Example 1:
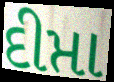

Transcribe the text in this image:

દીપ્તા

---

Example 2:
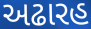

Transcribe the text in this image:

અઢારહ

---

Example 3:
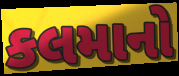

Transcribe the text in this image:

કલમાનો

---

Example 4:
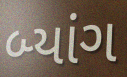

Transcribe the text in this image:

બ્યાંગ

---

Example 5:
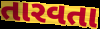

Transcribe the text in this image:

તારવતા